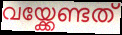
വയ്ക്കേണ്ടത്